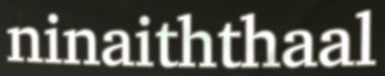
ninaiththaal